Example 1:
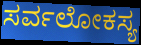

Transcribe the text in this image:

ಸರ್ವಲೋಕಸ್ಯ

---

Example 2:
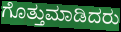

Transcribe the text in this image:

ಗೊತ್ತುಮಾಡಿದರು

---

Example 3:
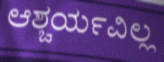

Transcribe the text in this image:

ಆಶ್ಚರ್ಯವಿಲ್ಲ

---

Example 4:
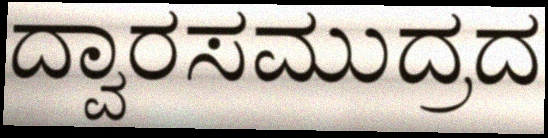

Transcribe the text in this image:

ದ್ವಾರಸಮುದ್ರದ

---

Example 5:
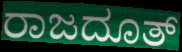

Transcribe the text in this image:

ರಾಜದೂತ್